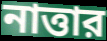
নাত্তার